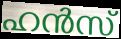
ഹൻസ്